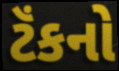
ટૅંકનો